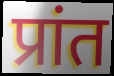
प्रांत